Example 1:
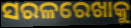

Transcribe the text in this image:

ସରଳରେଖାକୁ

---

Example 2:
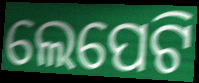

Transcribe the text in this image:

ଲେପେଟି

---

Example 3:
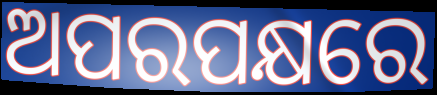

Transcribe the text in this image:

ଅପରପକ୍ଷରେ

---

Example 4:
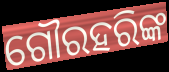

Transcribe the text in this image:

ଗୌରହରିଙ୍କ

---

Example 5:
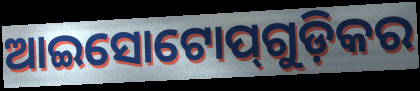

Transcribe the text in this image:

ଆଇସୋଟୋପ୍‌ଗୁଡ଼ିକର